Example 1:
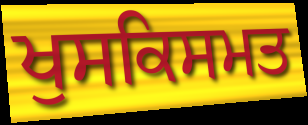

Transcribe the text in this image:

ਖੁਸਕਿਸਮਤ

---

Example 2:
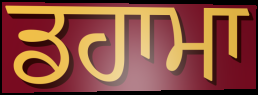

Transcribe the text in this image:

ਡਹਾਮਾ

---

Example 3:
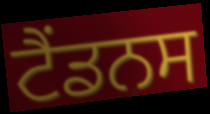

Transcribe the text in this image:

ਟੈਂਡਨਸ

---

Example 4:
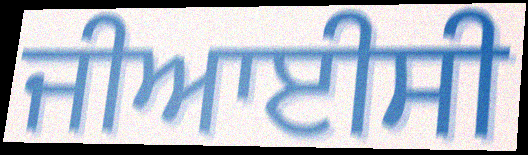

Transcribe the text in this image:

ਜੀਆਈਸੀ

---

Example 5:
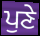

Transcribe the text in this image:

ਪੁਣੇ